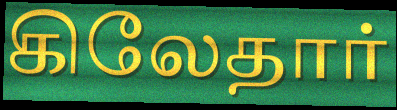
கிலேதார்